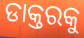
ଡାକ୍ତରକୁ